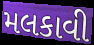
મલકાવી